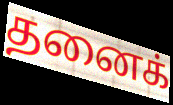
தனைக்